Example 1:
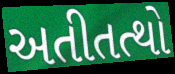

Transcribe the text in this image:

અતીતત્થો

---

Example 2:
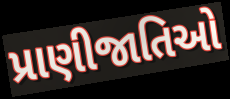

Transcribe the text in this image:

પ્રાણીજાતિઓ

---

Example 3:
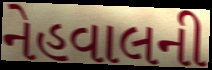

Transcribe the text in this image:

નેહવાલની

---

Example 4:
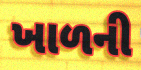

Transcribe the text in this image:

ખાળની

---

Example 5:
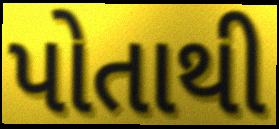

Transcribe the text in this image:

પોતાથી